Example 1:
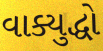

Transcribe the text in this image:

વાક્યુદ્ધો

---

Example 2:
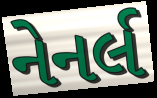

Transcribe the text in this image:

નેનર્લ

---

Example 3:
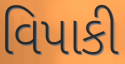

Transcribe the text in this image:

વિપાકી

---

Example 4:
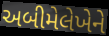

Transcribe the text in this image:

અબીમેલેખેને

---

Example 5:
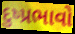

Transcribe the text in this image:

દુષ્પ્રભાવો